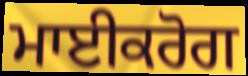
ਮਾਈਕਰੋਗ